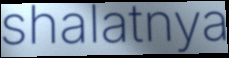
shalatnya